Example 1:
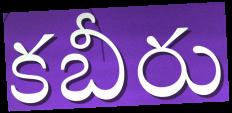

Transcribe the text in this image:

కబీరు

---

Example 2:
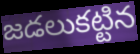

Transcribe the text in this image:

జడలుకట్టిన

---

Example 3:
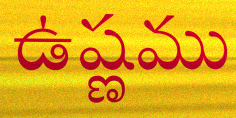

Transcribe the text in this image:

ఉష్ణము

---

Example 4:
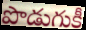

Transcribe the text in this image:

పొడుగుకీ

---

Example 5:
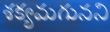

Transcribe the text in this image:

శక్యమగునని